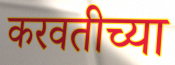
करवतीच्या